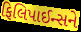
ફિલિપાઈન્સને